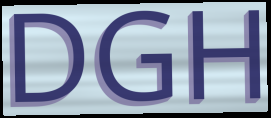
DGH